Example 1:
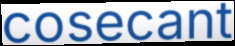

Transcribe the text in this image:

cosecant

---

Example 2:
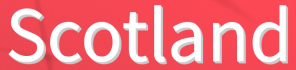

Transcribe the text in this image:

Scotland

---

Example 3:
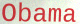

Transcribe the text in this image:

Obama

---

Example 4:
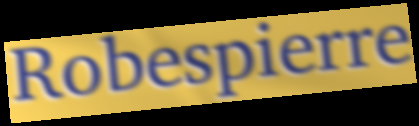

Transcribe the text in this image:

Robespierre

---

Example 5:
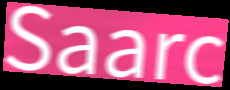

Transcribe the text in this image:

Saarc